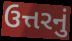
ઉત્તરનું